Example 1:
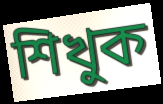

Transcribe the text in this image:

শিখুক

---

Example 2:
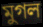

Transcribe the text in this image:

মুগল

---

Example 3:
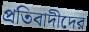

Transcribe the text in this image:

প্রতিবাদীদের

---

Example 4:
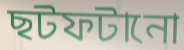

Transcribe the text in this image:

ছটফটানো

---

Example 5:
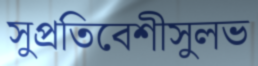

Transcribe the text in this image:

সুপ্রতিবেশীসুলভ